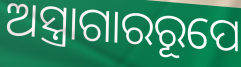
ଅସ୍ତ୍ରାଗାରରୂପେ